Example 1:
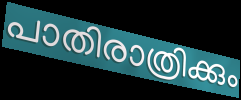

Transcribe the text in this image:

പാതിരാത്രിക്കും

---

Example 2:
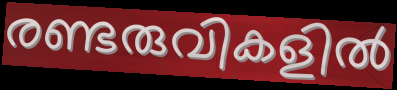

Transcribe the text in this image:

രണ്ടരുവികളിൽ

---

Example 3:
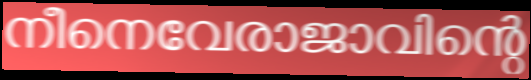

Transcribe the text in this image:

നീനെവേരാജാവിന്റെ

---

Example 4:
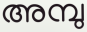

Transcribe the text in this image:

അമ്പു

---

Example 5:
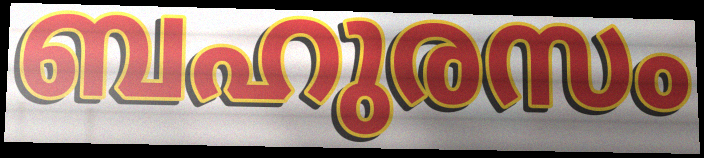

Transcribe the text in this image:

ബഹുരസം